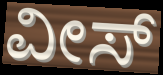
ವೀಸ್